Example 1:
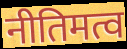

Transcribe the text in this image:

नीतिमत्व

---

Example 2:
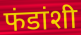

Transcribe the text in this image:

फंडांशी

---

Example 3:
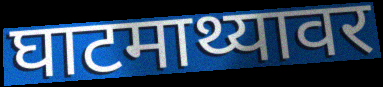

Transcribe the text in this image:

घाटमाथ्यावर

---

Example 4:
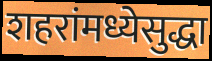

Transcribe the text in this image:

शहरांमध्येसुद्धा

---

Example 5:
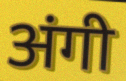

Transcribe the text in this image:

अंगी